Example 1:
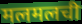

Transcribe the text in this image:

मलमलची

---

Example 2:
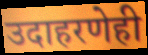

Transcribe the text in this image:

उदाहरणेही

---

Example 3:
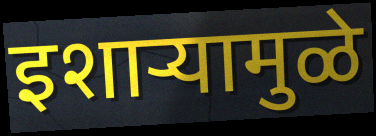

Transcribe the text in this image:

इशाऱ्यामुळे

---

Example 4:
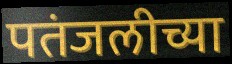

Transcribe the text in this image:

पतंजलीच्या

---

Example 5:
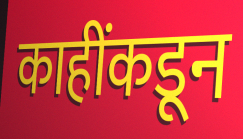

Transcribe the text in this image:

काहींकडून